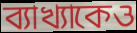
ব্যাখ্যাকেও